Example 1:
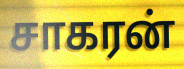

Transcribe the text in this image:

சாகரன்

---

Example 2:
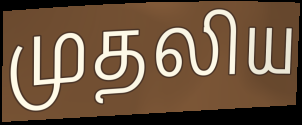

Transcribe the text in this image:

முதலிய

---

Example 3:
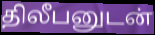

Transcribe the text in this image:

திலீபனுடன்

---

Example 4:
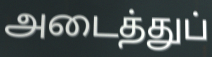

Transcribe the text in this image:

அடைத்துப்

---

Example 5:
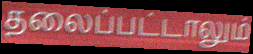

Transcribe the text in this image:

தலைப்பட்டாலும்